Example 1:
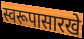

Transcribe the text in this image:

स्वरूपासारखे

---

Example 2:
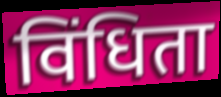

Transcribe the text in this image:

विंधिता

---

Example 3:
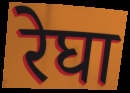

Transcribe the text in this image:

रेघा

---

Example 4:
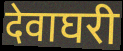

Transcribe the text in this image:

देवाघरी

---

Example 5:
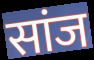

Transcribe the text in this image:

सांज